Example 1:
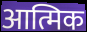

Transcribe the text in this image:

आत्मिक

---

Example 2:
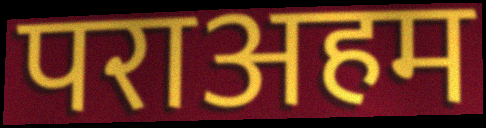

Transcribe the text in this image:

पराअहम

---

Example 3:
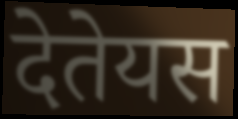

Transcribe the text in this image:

देतेयस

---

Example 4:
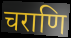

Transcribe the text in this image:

चराणि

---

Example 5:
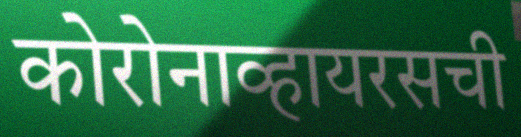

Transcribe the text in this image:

कोरोनाव्हायरसची